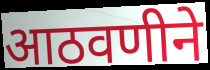
आठवणीने